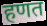
हणत